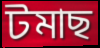
টমাছ